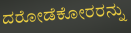
ದರೋಡೆಕೋರರನ್ನು